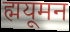
ह्मयूमन